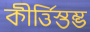
কীর্ত্তিস্তম্ভ